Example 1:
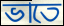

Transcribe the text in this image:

ভাতে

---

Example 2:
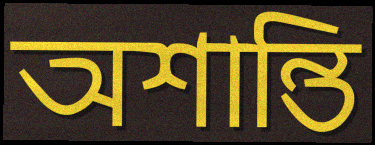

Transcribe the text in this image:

অশান্তি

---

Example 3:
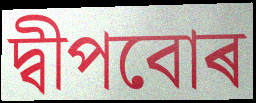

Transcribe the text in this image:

দ্বীপবোৰ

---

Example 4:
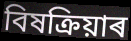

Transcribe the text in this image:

বিষক্ৰিয়াৰ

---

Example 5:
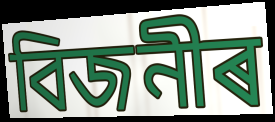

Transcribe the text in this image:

বিজনীৰ